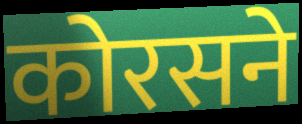
कोरसने